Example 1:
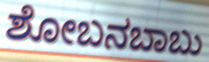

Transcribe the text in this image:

ಶೋಬನಬಾಬು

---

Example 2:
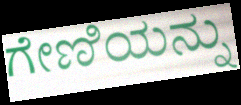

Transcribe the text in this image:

ಗೇಣಿಯನ್ನು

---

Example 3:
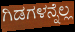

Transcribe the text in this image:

ಗಿಡಗಳನ್ನೆಲ್ಲ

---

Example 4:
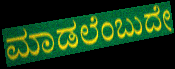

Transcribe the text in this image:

ಮಾಡಲೆಂಬುದೇ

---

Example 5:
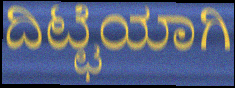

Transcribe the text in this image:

ದಿಟ್ಟೆಯಾಗಿ